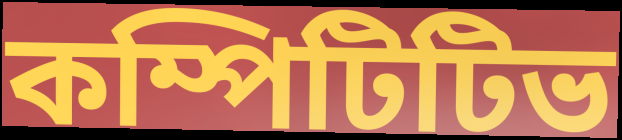
কম্পিটিটিভ